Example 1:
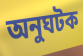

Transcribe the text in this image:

অনুঘটক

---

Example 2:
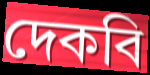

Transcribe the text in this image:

দেকবি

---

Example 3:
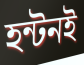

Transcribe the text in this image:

হন্টনই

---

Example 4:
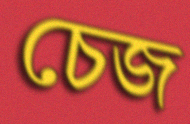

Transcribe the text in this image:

চেজ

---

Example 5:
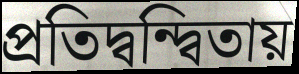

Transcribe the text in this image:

প্রতিদ্বন্দ্বিতায়